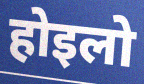
होइलो